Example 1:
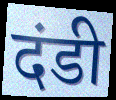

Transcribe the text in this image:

दंडी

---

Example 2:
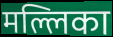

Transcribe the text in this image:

मल्लिका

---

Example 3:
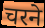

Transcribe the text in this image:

चरने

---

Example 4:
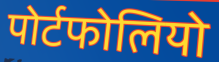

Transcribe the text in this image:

पोर्टफोलियो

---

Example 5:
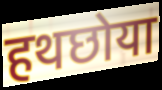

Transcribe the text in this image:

हथछोया